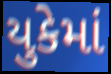
યુકેમાં